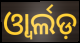
ଓ୍ୱାର୍ଲଡ଼